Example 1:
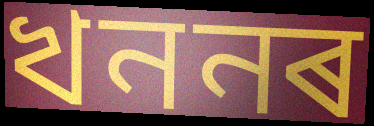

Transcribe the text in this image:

খননৰ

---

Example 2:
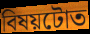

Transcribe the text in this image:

বিষয়টোত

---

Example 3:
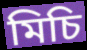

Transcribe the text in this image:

মিচি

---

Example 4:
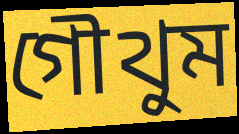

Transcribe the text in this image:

গৌথুম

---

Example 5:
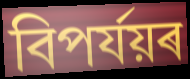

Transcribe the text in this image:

বিপৰ্যয়ৰ